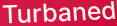
Turbaned